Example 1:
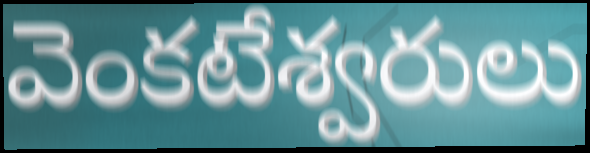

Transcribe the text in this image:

వెంకటేశ్వరులు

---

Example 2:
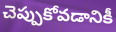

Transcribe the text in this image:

చెప్పుకోవడానికీ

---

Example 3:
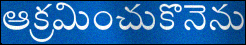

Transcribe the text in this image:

ఆక్రమించుకొనెను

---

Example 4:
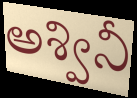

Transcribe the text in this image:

అశ్వినీ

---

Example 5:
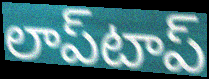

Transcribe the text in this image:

లాప్‌టాప్